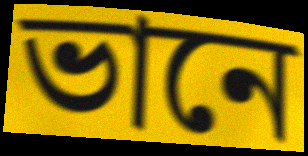
ভানে